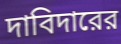
দাবিদারের